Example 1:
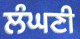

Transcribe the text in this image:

ਲੰਘਣੀ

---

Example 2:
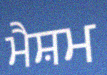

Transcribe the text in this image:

ਮੈਸ਼ਮ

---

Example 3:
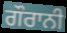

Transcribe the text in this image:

ਗੌਰਾਨੀ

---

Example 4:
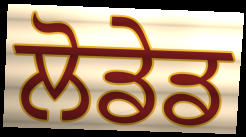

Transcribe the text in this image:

ਲੋਡੇਡ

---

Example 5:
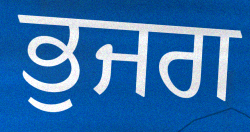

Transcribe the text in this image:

ਭੁਜਗ